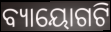
ବ୍ୟାୟୋଗଟି